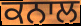
ਕਨਾਲ